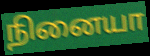
நினையா